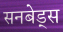
सनबेड्स